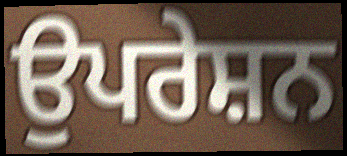
ਉਪਰੇਸ਼ਨ